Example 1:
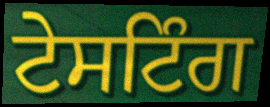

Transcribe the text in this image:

ਟੇਸਟਿੰਗ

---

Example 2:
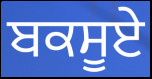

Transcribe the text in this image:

ਬਕਸੂਏ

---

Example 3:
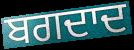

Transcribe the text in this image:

ਬਗਦਾਦ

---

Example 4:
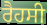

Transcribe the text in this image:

ਰੈਹਸੀ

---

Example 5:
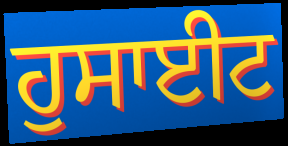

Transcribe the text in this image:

ਹੁਸਾਈਟ